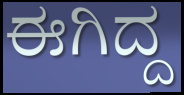
ಈಗಿದ್ದ